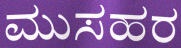
ಮುಸಹರ